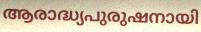
ആരാദ്ധ്യപുരുഷനായി